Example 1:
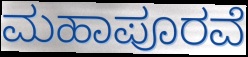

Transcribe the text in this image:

ಮಹಾಪೂರವೆ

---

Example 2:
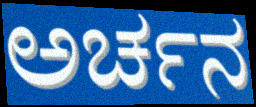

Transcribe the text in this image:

ಅರ್ಚನ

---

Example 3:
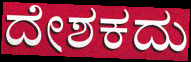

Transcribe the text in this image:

ದೇಶಕದು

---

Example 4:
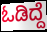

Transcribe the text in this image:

ಓಡಿದ್ದೆ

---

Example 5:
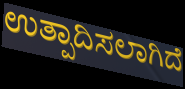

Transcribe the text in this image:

ಉತ್ಪಾದಿಸಲಾಗಿದೆ